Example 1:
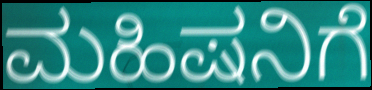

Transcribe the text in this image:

ಮಹಿಷನಿಗೆ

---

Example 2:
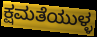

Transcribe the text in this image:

ಕ್ಷಮತೆಯುಳ್ಳ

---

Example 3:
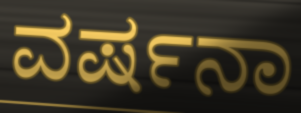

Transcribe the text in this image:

ವರ್ಷನಾ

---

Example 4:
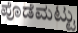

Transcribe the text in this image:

ಪೊಡೆಮಟ್ಟು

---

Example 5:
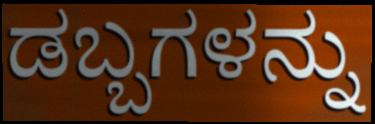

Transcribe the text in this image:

ಡಬ್ಬಗಳನ್ನು